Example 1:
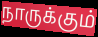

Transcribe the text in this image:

நாருக்கும்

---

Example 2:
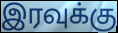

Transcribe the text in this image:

இரவுக்கு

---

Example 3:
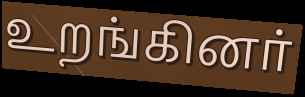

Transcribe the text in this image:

உறங்கினர்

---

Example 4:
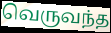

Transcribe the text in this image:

வெருவந்த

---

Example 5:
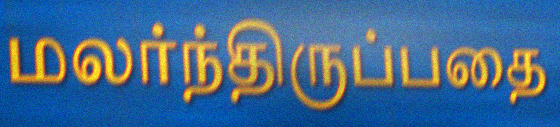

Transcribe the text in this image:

மலர்ந்திருப்பதை